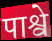
पाश्वे